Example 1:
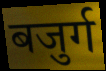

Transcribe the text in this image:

बजुर्ग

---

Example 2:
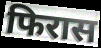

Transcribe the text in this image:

फिरास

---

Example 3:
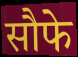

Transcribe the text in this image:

सौफे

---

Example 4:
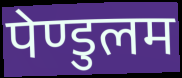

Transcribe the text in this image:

पेण्डुलम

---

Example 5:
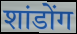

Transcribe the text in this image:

शांडोंग